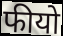
फीयो